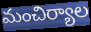
మంచిర్యాల